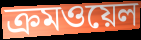
ক্রমওয়েল